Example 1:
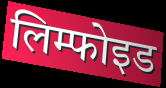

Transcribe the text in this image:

लिम्फोइड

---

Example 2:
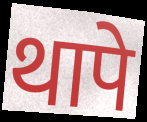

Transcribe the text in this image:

थापे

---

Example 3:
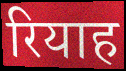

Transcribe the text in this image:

रियाह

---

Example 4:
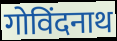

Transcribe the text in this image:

गोविंदनाथ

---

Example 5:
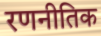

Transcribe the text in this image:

रणनीतिक